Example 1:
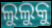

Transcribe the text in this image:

ଲୁଲୁକୁ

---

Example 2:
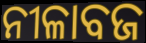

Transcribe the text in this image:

ନୀଳାବଜ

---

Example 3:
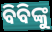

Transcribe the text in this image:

ବିବିଙ୍କୁ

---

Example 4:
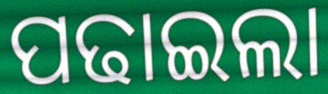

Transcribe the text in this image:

ପଢାଇଲା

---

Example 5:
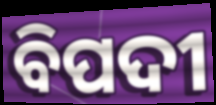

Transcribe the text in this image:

ବିପଦୀ